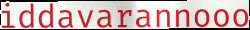
iddavarannooo